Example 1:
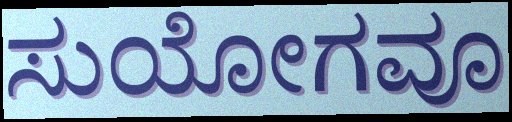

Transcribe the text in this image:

ಸುಯೋಗವೂ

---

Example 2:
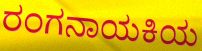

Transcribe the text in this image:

ರಂಗನಾಯಕಿಯ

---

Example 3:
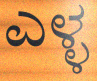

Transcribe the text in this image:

ಎಳ್ಳ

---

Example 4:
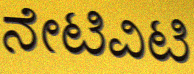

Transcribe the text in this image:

ನೇಟಿವಿಟಿ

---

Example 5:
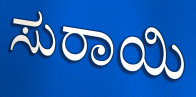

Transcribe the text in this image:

ಸುರಾಯಿ